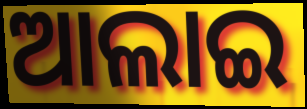
ଆଲାଇ